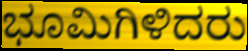
ಭೂಮಿಗಿಳಿದರು